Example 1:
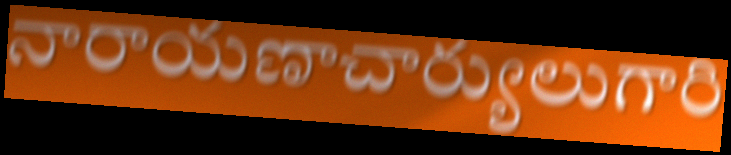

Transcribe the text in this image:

నారాయణాచార్యులుగారి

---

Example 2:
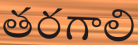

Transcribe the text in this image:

తరగాలి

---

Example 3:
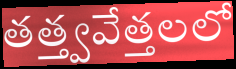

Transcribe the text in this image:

తత్త్వవేత్తలలో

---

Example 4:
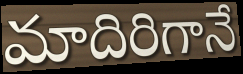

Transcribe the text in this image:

మాదిరిగానే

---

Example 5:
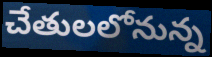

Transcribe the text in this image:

చేతులలోనున్న